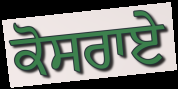
ਕੋਸਰਾਏ